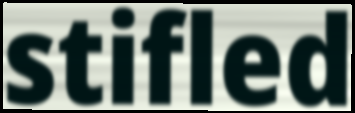
stifled